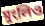
মুংলিও